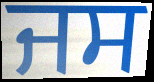
ਜਸ